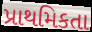
પ્રાથમિકતા